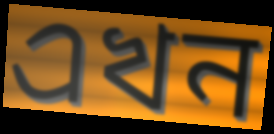
এখন